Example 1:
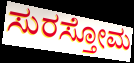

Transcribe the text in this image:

ಸುರಸ್ತೋಮ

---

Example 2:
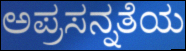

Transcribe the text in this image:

ಅಪ್ರಸನ್ನತೆಯ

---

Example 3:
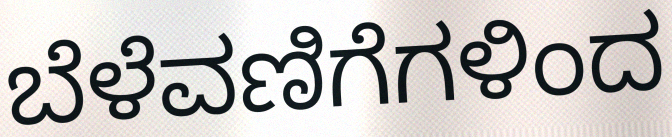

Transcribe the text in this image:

ಬೆಳೆವಣಿಗೆಗಳಿಂದ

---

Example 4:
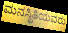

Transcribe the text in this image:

ಮನಸ್ಥಿತಿಯವರು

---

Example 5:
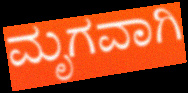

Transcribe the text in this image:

ಮೃಗವಾಗಿ